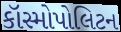
કૉસ્મોપોલિટન